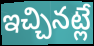
ఇచ్చినట్లే